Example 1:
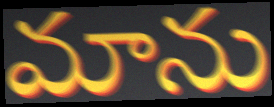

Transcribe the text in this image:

మాను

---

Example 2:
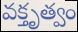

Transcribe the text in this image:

వక్తృత్వం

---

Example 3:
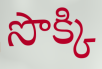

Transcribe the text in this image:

సొక్కి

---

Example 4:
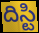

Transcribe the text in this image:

దిస్టి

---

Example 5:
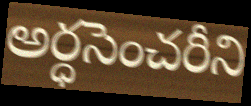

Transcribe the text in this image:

అర్ధసెంచరీని